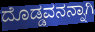
ದೊಡ್ಡವನನ್ನಾಗಿ